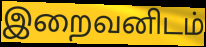
இறைவனிடம்